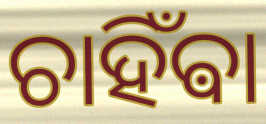
ଚାହିଁଵା